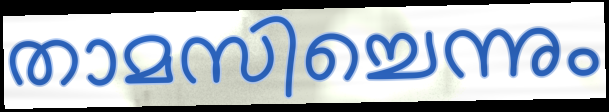
താമസിച്ചെന്നും